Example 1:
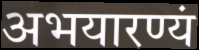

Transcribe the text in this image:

अभयारण्यं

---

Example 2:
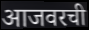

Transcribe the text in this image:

आजवरची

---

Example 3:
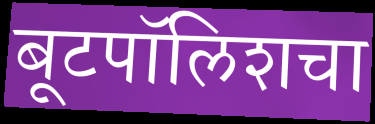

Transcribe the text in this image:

बूटपॉलिशचा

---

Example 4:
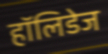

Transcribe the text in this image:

हॉलिडेज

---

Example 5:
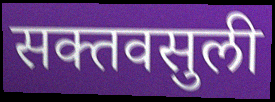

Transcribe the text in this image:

सक्तवसुली